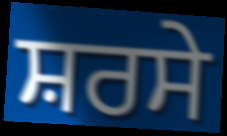
ਸ਼ਰਸੇ